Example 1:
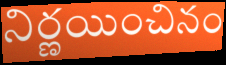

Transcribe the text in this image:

నిర్ణయించినం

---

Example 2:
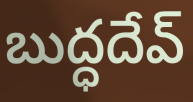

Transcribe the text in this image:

బుద్ధదేవ్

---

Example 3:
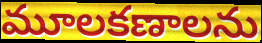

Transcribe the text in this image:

మూలకణాలను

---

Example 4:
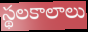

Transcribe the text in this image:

స్థలకాలాలు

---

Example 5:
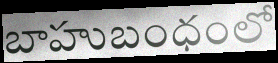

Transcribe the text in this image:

బాహుబంధంలో